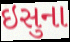
ઇસુના